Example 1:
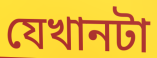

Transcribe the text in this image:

যেখানটা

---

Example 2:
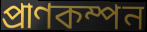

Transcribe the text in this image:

প্রাণকম্পন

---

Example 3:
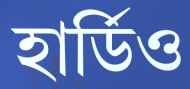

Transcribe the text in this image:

হার্ডিও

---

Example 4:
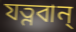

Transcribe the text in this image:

যত্নবান্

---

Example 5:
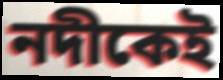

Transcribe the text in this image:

নদীকেই